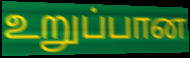
உறுப்பான